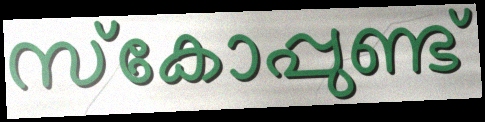
സ്കോപ്പുണ്ട്